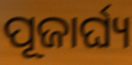
ପୂଜାର୍ଘ୍ୟ